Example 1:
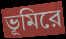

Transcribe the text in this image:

ভূমিরে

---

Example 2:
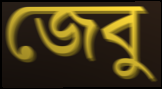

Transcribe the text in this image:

জেবু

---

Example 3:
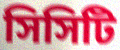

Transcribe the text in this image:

সিসিটি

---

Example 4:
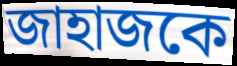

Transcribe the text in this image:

জাহাজকে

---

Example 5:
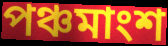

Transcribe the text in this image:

পঞ্চমাংশ